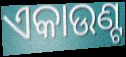
ଏକାଉଣ୍ଟ